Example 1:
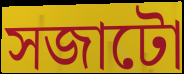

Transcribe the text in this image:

সজাটো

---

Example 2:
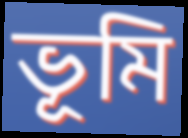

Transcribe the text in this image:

ভূমি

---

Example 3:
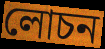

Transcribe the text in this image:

লোচন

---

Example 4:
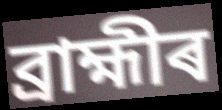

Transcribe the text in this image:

ব্ৰাহ্মীৰ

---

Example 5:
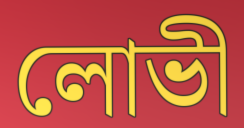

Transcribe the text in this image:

লোভী